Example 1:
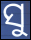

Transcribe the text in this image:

ସୁ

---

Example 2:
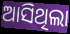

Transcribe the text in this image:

ଆସିଥିଲା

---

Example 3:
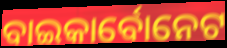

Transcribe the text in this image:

ବାଇକାର୍ବୋନେଟ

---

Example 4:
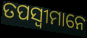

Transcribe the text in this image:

ତପସ୍ୱୀମାନେ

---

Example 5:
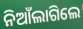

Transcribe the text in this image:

ନିଆଁଲାଗିଲେ